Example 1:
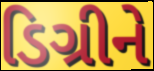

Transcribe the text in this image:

ડિગ્રીને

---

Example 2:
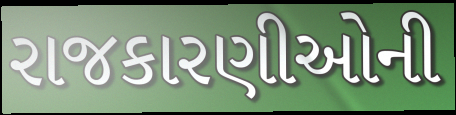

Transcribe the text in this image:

રાજકારણીઓની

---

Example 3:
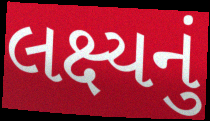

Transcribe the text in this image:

લક્ષ્યનું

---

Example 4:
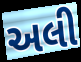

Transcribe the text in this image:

અલી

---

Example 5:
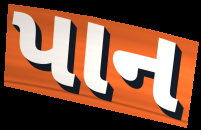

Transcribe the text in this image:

પાન